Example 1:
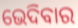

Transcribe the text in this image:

ଭେଦିବାର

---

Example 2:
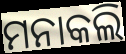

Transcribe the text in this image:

ମନାକଲି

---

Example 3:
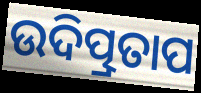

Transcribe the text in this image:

ଉଦିତ୍ପ୍ରତାପ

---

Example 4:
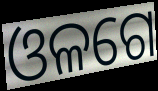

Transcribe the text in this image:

ଓଳଗେ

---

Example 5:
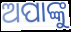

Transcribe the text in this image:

ଅପାଙ୍କୁ